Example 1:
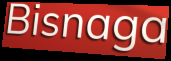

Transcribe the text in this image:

Bisnaga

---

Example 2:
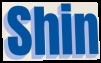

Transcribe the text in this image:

Shin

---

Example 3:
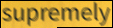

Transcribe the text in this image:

supremely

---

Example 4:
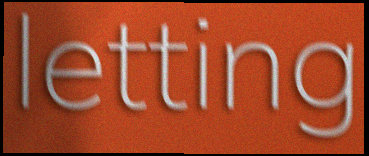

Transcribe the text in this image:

letting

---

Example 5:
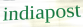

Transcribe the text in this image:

indiapost